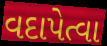
વદાપેત્વા